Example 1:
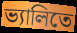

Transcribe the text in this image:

ভ্যালিতে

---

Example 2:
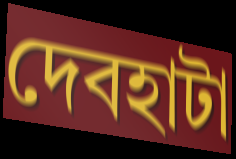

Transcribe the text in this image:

দেবহাটা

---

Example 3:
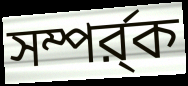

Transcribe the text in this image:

সম্পর্র্ক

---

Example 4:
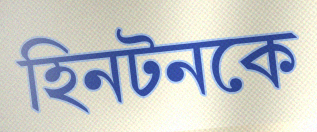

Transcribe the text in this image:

হিনটনকে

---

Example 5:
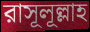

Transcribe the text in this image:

রাসূলূল্লাহ